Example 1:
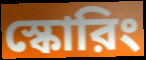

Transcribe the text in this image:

স্কোরিং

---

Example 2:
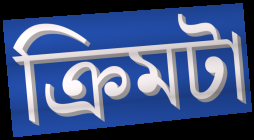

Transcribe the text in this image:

ক্রিমটা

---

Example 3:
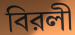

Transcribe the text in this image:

বিরলী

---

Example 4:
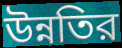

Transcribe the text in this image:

উন্নতির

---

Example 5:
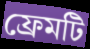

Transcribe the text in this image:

ফ্রেমটি